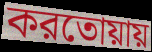
করতোয়ায়